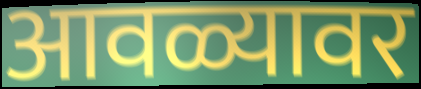
आवळ्यावर